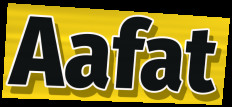
Aafat